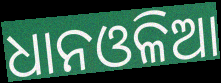
ଧାନଓଳିଆ